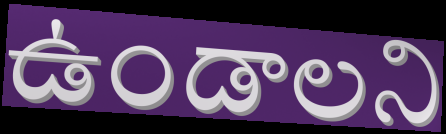
ఉండాలని